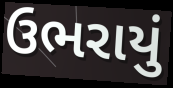
ઉભરાયું